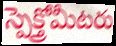
స్పెక్త్రోమీటరు